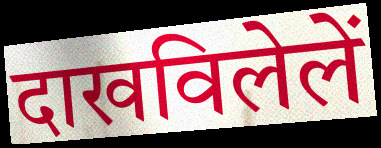
दाखविलेलें